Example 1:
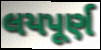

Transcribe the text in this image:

લયપૂર્ણ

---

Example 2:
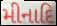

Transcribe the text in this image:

મીનાદિ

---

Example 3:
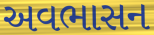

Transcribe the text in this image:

અવભાસન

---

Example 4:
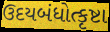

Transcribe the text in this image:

ઉદયબંધોત્કૃષ્ટા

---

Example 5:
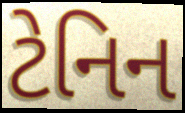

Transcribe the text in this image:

ટેનિન